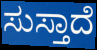
ಸುಸ್ತಾದೆ